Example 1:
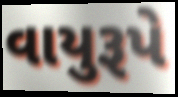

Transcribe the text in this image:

વાયુરૂપે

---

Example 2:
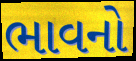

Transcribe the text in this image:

ભાવનો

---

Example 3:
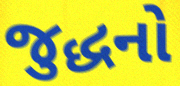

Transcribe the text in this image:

જુદ્ધનો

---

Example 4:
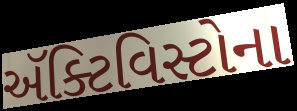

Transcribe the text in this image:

ઍક્ટિવિસ્ટોના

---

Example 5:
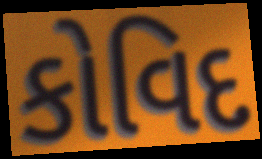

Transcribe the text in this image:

કોવિદ